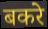
बकरे